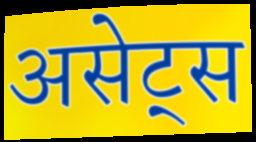
असेट्स